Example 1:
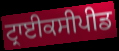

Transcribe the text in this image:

ਟ੍ਰਾਈਕਸੀਪੀਡ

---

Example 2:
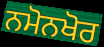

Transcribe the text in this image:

ਨਮੋਨਖੋਰ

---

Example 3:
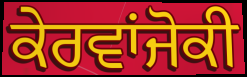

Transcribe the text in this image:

ਕੇਰਵਾਂਜੋਕੀ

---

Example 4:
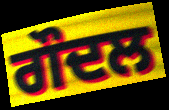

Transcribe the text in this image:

ਗੌਦਲ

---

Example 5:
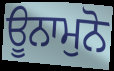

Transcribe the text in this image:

ਊਨਾਮੁਨੋ